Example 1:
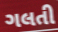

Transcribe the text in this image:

ગલતી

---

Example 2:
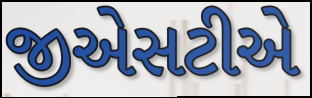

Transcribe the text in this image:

જીએસટીએ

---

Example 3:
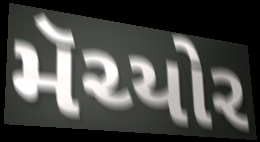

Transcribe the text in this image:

મૅચ્યોર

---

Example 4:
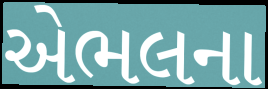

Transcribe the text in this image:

એભલના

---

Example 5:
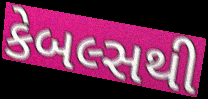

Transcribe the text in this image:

કેબલ્સથી